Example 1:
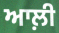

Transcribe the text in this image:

ਆਲ਼ੀ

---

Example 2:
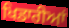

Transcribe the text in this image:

ਖਿਡਾਰੀਆਂ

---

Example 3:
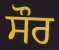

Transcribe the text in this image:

ਸੌਰ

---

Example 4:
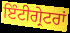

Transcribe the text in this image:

ਇੰਟੀਗ੍ਰੇਟਰਾਂ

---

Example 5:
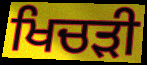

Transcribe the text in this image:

ਖਿਚੜੀ